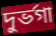
দুর্ভগা